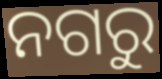
ନଗରୁ